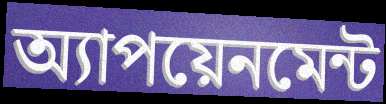
অ্যাপয়েনমেন্ট